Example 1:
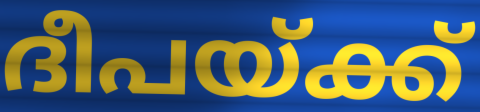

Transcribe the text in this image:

ദീപയ്ക്ക്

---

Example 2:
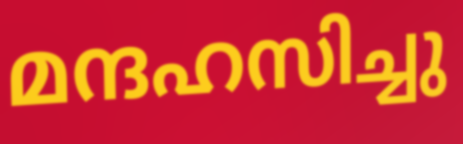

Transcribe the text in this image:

മന്ദഹസിച്ചു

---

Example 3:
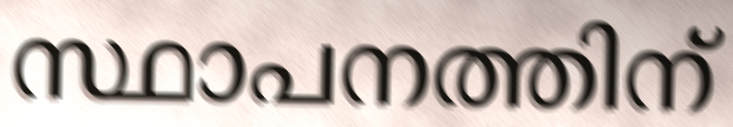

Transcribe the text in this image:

സ്ഥാപനത്തിന്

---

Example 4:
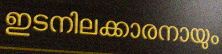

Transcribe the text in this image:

ഇടനിലക്കാരനായും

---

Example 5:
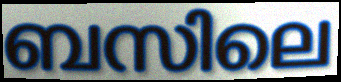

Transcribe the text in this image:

ബസിലെ